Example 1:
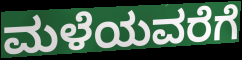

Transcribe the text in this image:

ಮಳೆಯವರೆಗೆ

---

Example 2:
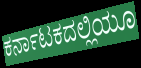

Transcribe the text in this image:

ಕರ್ನಾಟಕದಲ್ಲಿಯೂ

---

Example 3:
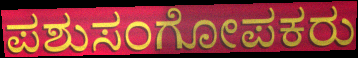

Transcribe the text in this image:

ಪಶುಸಂಗೋಪಕರು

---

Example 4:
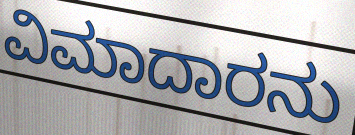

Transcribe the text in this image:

ವಿಮಾದಾರನು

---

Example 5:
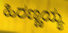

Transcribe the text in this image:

ಹಿರಣ್ಣಯ್ಯ